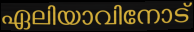
ഏലിയാവിനോട്